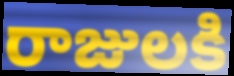
రాజులకి